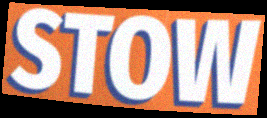
STOW